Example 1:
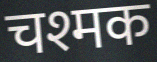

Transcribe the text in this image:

चश्मक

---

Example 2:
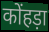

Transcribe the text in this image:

कोंहड़ा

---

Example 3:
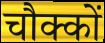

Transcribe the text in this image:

चौक्कों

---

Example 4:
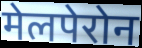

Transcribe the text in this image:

मेलपेरोन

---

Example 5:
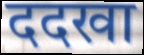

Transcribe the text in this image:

ददखा